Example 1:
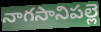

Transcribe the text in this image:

నాగసానిపల్లె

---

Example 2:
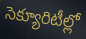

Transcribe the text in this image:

సెక్యూరిటీల్లో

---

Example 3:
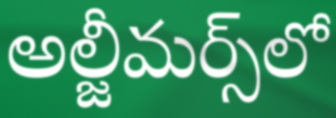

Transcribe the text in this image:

అల్జీమర్స్‌లో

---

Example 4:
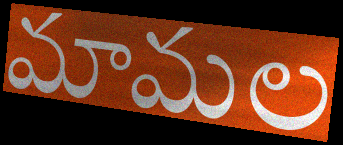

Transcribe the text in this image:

మామల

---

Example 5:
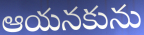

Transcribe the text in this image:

ఆయనకును